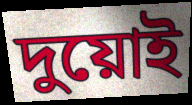
দুয়োই